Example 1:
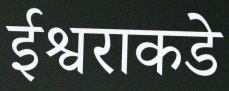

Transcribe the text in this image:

ईश्वराकडे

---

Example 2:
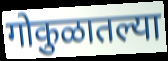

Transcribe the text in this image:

गोकुळातल्या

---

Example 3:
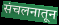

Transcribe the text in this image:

संचलनातून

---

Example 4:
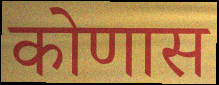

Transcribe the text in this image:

कोणास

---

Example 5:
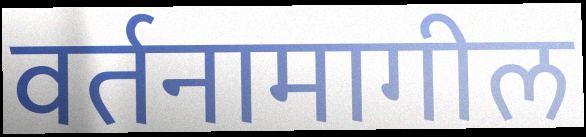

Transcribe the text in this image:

वर्तनामागील